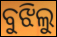
ବୁଝିଲୁ